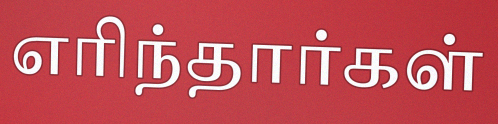
எரிந்தார்கள்